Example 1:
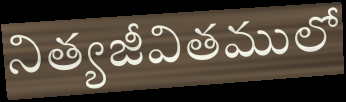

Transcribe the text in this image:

నిత్యజీవితములో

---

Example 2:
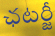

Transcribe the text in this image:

ఛటర్జీ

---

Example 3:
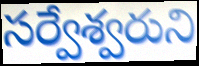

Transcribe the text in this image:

సర్వేశ్వరుని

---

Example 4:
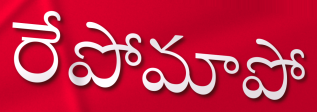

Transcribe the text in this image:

రేపోమాపో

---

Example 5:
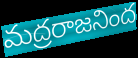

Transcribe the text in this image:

మద్రరాజనింద